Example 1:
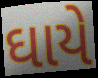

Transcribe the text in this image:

ઘાયે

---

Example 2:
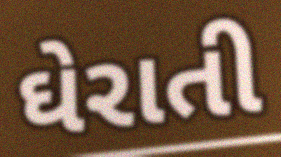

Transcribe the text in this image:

ઘેરાતી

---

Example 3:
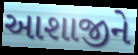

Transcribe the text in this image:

આશાજીને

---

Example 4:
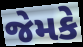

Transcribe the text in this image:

જેમકે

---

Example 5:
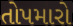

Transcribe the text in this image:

તોપમારો